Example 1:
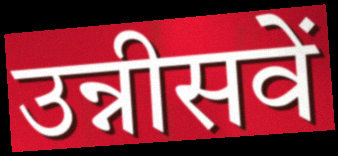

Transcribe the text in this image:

उन्नीसवें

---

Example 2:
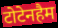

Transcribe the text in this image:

टोटेनहैम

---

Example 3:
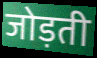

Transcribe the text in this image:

जोड़ती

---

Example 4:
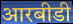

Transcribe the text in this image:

आरबीडी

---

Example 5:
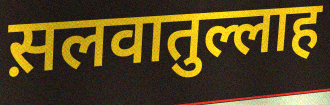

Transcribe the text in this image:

स़लवातुल्लाह